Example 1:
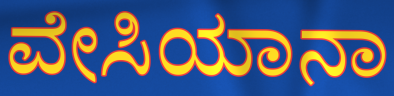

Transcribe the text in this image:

ವೇಸಿಯಾನಾ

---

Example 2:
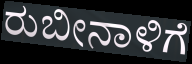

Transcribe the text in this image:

ರುಬೀನಾಳಿಗೆ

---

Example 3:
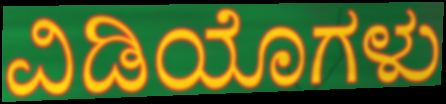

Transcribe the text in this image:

ವಿಡಿಯೊಗಳು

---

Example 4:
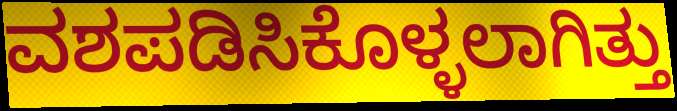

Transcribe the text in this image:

ವಶಪಡಿಸಿಕೊಳ್ಳಲಾಗಿತ್ತು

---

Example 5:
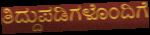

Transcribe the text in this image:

ತಿದ್ದುಪಡಿಗಳೊಂದಿಗೆ